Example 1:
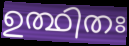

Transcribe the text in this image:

ഉത്ഥിതഃ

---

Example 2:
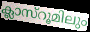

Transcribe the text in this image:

ക്ലാസ്റൂമിലും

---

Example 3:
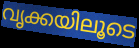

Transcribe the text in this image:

വൃക്കയിലൂടെ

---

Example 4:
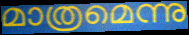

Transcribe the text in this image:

മാത്രമെന്നു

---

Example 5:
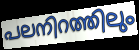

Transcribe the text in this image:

പലനിറത്തിലും